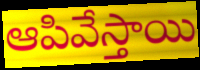
ఆపివేస్తాయి